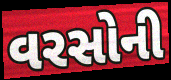
વરસોની